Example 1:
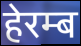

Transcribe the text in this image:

हेरम्ब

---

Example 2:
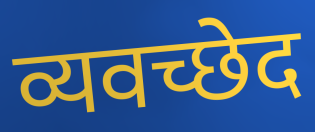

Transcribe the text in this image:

व्यवच्छेद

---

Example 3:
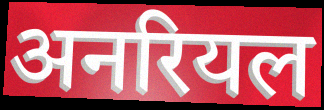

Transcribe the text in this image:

अनरियल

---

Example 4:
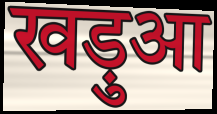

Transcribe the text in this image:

खड़ुआ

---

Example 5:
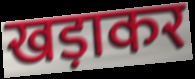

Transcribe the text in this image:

खड़ाकर